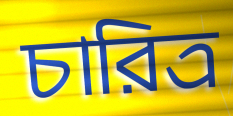
চারিত্র